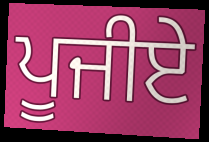
ਪੂਜੀਏ